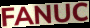
FANUC